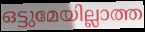
ഒട്ടുമേയില്ലാത്ത